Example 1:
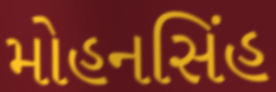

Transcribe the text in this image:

મોહનસિંહ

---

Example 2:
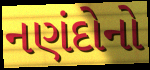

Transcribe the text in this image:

નણંદોનો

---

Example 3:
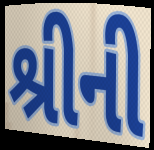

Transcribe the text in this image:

શ્રીની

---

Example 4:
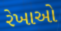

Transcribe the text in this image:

રેખાઓ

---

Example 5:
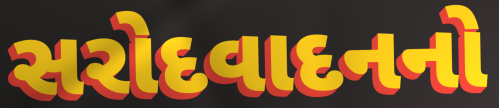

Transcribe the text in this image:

સરોદવાદનનો